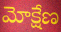
మోక్షేణ